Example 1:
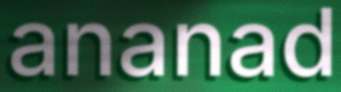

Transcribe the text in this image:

ananad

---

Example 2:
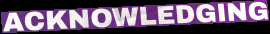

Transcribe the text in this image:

ACKNOWLEDGING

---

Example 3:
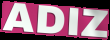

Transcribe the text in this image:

ADIZ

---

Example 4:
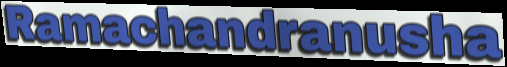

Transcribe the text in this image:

Ramachandranusha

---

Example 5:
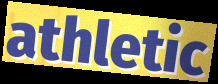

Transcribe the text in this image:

athletic